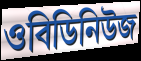
ওবিডিনিউজ